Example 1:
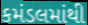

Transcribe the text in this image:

કમંડલમાંથી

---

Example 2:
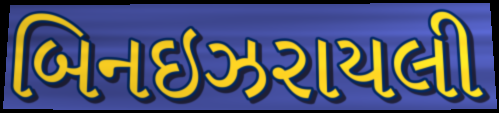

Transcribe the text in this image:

બિનઇઝરાયલી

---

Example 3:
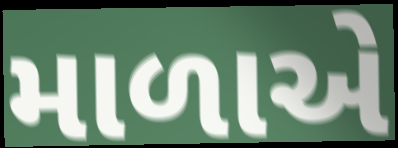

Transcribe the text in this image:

માળાએ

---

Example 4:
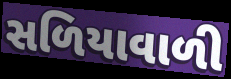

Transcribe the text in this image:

સળિયાવાળી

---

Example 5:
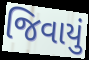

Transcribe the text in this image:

જિવાયું